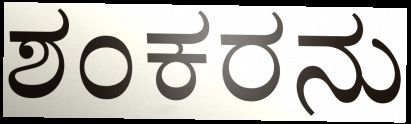
ಶಂಕರನು